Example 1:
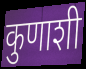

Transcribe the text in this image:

कुणाशी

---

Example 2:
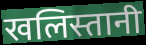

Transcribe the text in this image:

खलिस्तानी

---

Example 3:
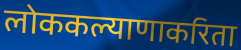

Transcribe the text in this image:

लोककल्याणाकरिता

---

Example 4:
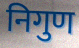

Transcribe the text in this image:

निगुण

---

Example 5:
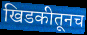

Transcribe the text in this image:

खिडकीतूनच